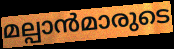
മല്പാൻമാരുടെ